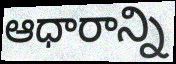
ఆధారాన్ని